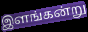
இளங்கன்று